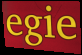
egie